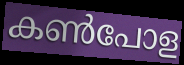
കൺപോള